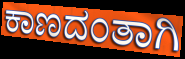
ಕಾಣದಂತಾಗಿ